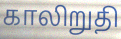
காலிறுதி